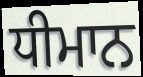
ਧੀਮਾਨ